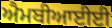
ਐਮਬੀਆਈਈ